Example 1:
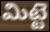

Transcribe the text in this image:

మిట్టె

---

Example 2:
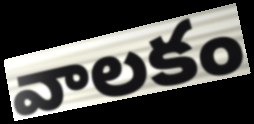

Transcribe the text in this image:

వాలకం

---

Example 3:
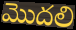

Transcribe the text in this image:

మొదలి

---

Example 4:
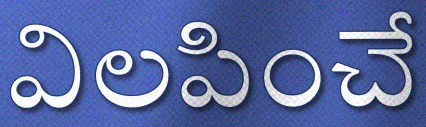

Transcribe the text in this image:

విలపించే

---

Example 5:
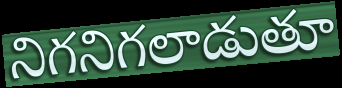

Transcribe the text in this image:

నిగనిగలాడుతూ